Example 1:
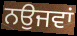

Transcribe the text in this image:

ਨਉਜਵਾਂ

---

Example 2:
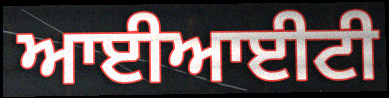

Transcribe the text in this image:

ਆਈਆਈਟੀ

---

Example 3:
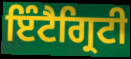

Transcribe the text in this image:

ਇੰਟੈਗ੍ਰਿਟੀ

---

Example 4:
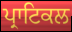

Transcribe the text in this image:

ਪ੍ਰਾਟਿਕਲ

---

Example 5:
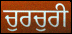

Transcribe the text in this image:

ਚੁਰਚੁਰੀ